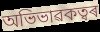
অভিভাৱকত্বৰ